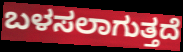
ಬಳಸಲಾಗುತ್ತದೆ